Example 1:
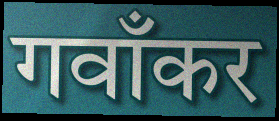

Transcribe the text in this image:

गवाँकर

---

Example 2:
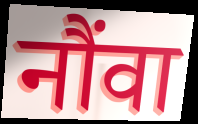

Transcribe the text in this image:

नौंवा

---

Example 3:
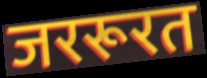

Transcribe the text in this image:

जररूरत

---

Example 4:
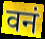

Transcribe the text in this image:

वनं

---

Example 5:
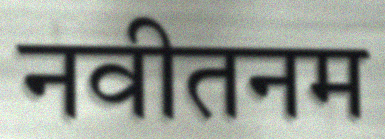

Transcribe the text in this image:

नवीतनम